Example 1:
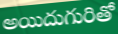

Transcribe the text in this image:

అయిదుగురితో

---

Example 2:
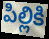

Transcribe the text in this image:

పిల్లికి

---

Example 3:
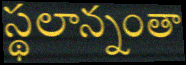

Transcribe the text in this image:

స్థలాన్నంతా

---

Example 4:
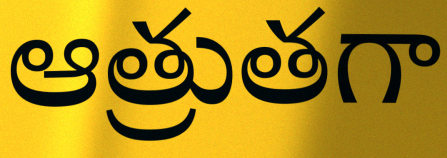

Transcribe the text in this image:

ఆత్రుతగా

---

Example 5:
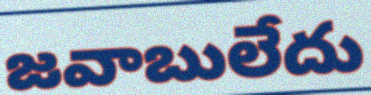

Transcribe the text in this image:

జవాబులేదు